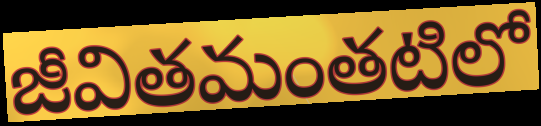
జీవితమంతటిలో